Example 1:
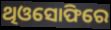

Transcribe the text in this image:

ଥିଓସୋଫିରେ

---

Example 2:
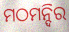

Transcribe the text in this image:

ମଠମନ୍ଦିର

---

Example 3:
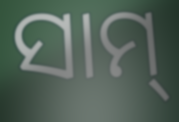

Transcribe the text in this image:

ସାମ୍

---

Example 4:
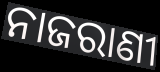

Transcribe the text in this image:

ନାଜରାଣୀ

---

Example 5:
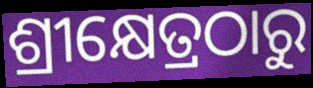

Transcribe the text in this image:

ଶ୍ରୀକ୍ଷେତ୍ରଠାରୁ